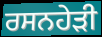
ਰਸਨਹੇੜੀ